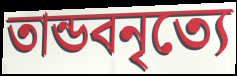
তান্ডবনৃত্যে